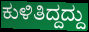
ಕುಳಿತಿದ್ದದ್ದು